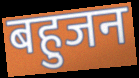
बहुजन